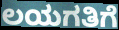
ಲಯಗತಿಗೆ